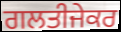
ਗਲਤੀਜੇਕਰ